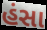
હંસા